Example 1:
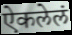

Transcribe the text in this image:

ऐकलेलं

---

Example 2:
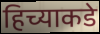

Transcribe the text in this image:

हिच्याकडे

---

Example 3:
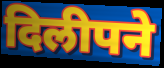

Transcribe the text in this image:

दिलीपने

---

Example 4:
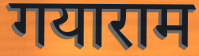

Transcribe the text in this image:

गयाराम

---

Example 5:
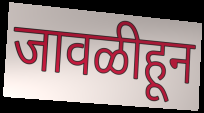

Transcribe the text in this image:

जावळीहून